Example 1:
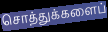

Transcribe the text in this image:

சொத்துக்களைப்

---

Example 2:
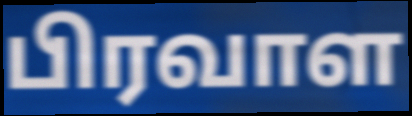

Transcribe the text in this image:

பிரவாள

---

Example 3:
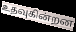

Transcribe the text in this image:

உதவுகின்றன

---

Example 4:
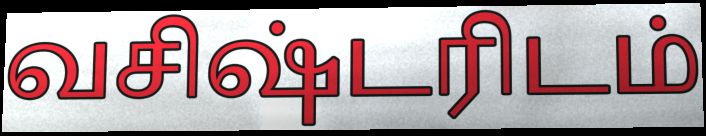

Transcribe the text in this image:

வசிஷ்டரிடம்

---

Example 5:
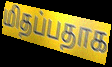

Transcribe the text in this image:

மிதப்பதாக